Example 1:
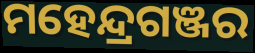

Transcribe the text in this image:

ମହେନ୍ଦ୍ରଗଞ୍ଜର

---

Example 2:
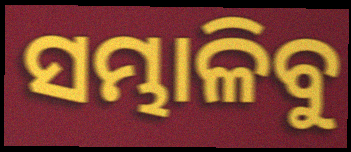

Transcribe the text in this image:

ସମ୍ଭାଳିବୁ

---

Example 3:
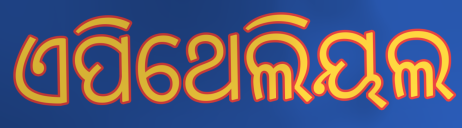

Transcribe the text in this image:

ଏପିଥେଲିୟଲ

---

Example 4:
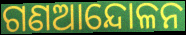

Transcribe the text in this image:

ଗଣଆନ୍ଦୋଳନ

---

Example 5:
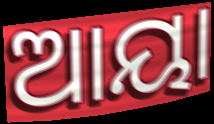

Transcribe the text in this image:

ଆୟା